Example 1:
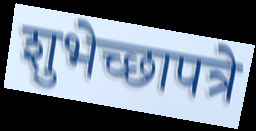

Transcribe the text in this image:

शुभेच्छापत्रे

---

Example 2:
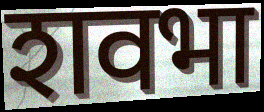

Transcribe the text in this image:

शवभा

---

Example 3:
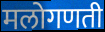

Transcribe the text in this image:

मलोगणती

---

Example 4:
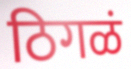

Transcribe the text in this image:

ठिगळं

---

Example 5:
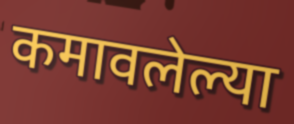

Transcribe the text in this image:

कमावलेल्या